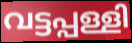
വട്ടപ്പള്ളി